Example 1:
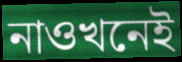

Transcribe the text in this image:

নাওখনেই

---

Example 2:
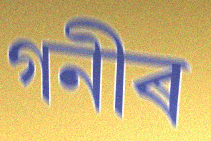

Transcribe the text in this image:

গনীৰ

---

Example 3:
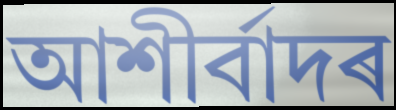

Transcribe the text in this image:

আশীৰ্বাদৰ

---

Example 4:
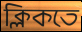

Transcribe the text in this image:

ক্লিকতে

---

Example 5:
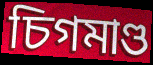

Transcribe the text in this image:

চিগমাণ্ড